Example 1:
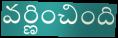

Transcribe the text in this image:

వర్ణించింది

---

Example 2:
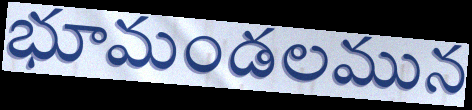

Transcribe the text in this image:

భూమండలమున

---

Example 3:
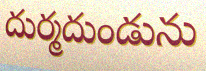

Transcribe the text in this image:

దుర్మదుండును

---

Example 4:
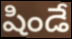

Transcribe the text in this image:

షిండే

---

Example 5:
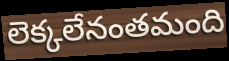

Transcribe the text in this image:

లెక్కలేనంతమంది